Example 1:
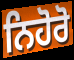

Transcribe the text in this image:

ਨਿਹੋਰੋ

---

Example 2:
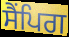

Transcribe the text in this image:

ਸੈਂਪਿਗ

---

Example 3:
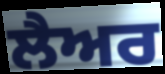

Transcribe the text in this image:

ਲੈਅਰ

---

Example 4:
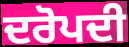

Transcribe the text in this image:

ਦਰੋਪਦੀ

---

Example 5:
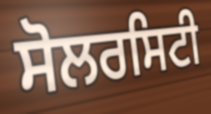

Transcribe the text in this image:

ਸੋਲਰਸਿਟੀ